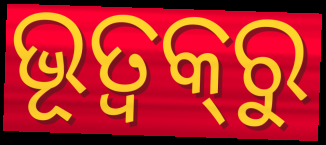
ଭୂତ୍ଵକ୍‌ରୁ